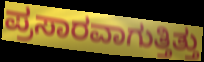
ಪ್ರಸಾರವಾಗುತ್ತಿತ್ತು